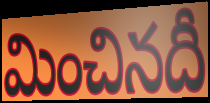
మించినదీ